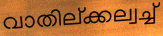
വാതില്ക്കല്വച്ച്